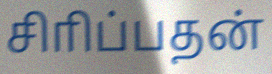
சிரிப்பதன்